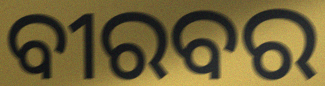
ବୀରବର